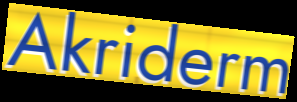
Akriderm